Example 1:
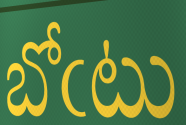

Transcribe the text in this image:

బోఁటు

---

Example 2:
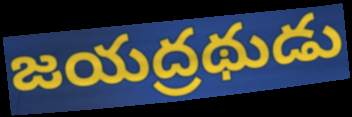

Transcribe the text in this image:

జయద్రథుడు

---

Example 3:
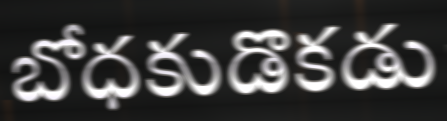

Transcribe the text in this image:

బోధకుడొకడు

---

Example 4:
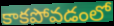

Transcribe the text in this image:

కాకపోవడంలో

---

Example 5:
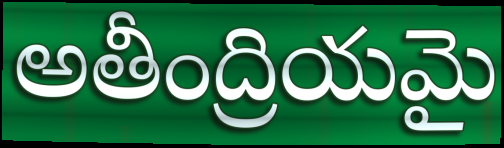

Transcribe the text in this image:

అతీంద్రియమై